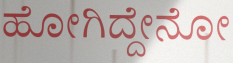
ಹೋಗಿದ್ದೇನೋ